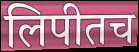
लिपीतच